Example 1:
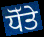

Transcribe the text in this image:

ਧੋੱਤੇ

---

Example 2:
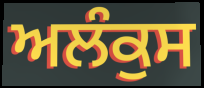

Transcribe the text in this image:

ਅਲੰਕੁਸ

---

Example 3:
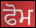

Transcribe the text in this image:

ਫੋਮ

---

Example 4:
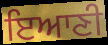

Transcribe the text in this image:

ਇਆਣੀ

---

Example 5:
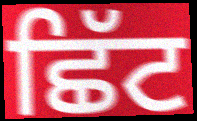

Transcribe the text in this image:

ਛਿੱਟ